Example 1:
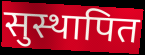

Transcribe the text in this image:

सुस्थापित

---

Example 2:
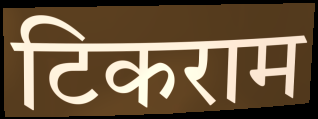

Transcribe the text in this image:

टिकराम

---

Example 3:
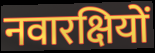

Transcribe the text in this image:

नवारक्षियों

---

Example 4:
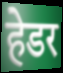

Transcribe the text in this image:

हेडर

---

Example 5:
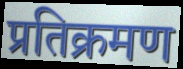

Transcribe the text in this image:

प्रतिक्रमण